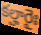
కల్హారైః